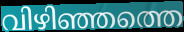
വിഴിഞ്ഞത്തെ